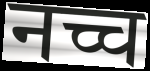
नच्च